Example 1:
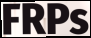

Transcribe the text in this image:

FRPs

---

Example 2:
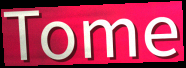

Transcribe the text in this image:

Tome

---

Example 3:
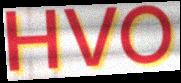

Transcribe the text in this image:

HVO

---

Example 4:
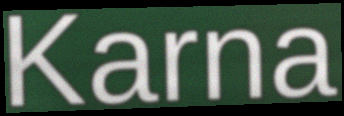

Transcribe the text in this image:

Karna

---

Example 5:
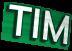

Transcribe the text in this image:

TIM